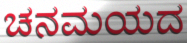
ಚನಮಯದ